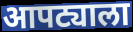
आपट्याला